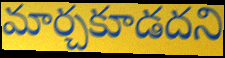
మార్చకూడదని